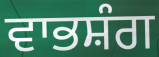
ਵਾਭਸ਼ੰਗ